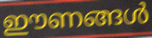
ഈണങ്ങൾ